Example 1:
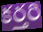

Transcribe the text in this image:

కర్తరి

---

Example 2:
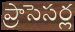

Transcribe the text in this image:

ప్రాసెసర్ల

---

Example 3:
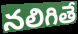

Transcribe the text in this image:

నలిగితే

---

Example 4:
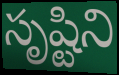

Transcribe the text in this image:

సృష్టిని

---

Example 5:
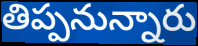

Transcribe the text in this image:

తిప్పనున్నారు